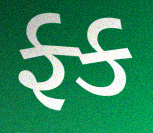
ફ્ક